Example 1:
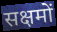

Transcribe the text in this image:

सक्षमों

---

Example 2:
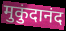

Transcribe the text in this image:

मुकुंदानंद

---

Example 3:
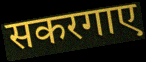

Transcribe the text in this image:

सकरगाए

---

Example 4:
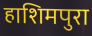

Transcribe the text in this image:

हाशिमपुरा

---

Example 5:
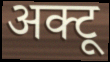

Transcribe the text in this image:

अक्टू